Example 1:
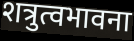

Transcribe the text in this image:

शत्रुत्वभावना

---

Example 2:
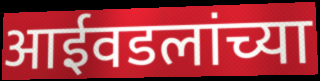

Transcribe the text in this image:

आईवडलांच्या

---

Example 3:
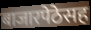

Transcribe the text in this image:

बाजारपेठेसह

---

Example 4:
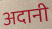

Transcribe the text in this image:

अदानी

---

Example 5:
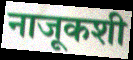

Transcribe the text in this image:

नाजूकशी